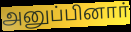
அனுப்பினார்